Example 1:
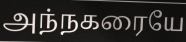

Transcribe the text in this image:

அந்நகரையே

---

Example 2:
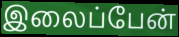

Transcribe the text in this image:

இலைப்பேன்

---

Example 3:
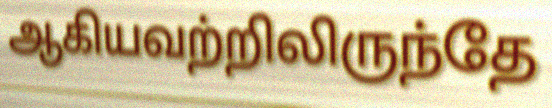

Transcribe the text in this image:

ஆகியவற்றிலிருந்தே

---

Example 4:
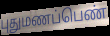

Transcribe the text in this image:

புதுமணப்பெண்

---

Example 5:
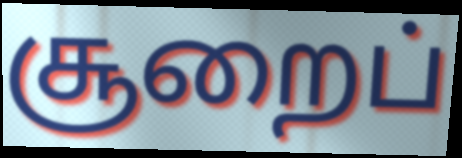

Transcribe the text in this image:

சூறைப்